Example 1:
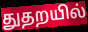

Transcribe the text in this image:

துதறயில்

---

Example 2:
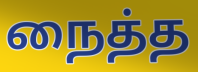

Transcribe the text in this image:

நைத்த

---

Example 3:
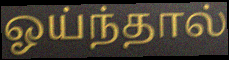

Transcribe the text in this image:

ஓய்ந்தால்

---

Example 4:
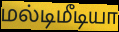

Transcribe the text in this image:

மல்டிமீடியா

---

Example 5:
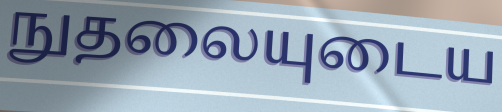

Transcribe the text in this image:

நுதலையுடைய